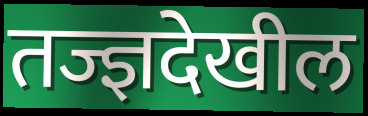
तज्ज्ञदेखील